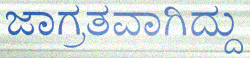
ಜಾಗ್ರತವಾಗಿದ್ದು